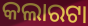
କଲାରଟା